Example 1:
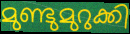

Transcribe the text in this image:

മുണ്ടുമുറുക്കി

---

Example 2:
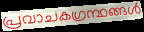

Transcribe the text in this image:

പ്രവാചകഗ്രന്ഥങ്ങൾ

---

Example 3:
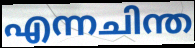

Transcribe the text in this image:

എന്നചിന്ത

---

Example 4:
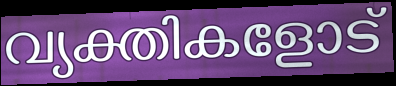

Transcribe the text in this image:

വ്യക്തികളോട്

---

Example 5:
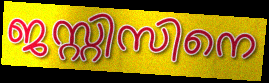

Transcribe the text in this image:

ജസ്റ്റിസിനെ